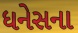
ધનેસના